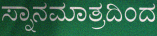
ಸ್ನಾನಮಾತ್ರದಿಂದ